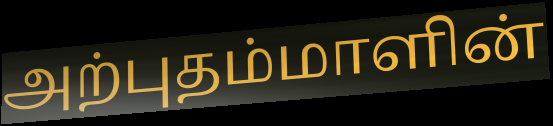
அற்புதம்மாளின்